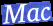
Mac